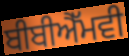
ਬੀਬੀਐੱਮਵੀ